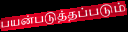
பயன்படுத்தப்படும்